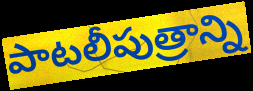
పాటలీపుత్రాన్ని